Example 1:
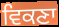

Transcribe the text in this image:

ਵਿਕਣਾ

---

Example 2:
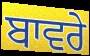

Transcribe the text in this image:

ਬਾਵਰੇ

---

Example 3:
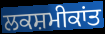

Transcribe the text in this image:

ਲਕਸ਼ਮੀਕਾਂਤ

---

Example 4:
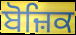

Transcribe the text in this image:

ਬੋਜ਼ਿਕ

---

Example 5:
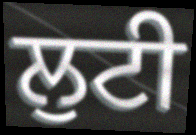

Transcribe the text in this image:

ਲੁਟੀ